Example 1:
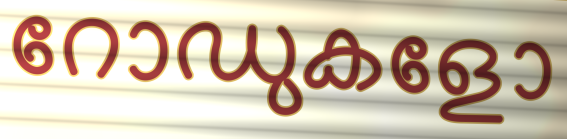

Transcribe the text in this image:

റോഡുകളോ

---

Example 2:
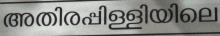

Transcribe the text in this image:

അതിരപ്പിള്ളിയിലെ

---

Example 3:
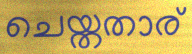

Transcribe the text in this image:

ചെയ്തതാര്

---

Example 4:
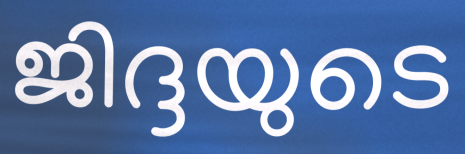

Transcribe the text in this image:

ജിദ്ദയുടെ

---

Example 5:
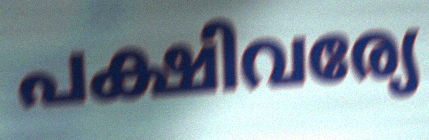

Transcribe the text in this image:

പക്ഷിവര്യേ